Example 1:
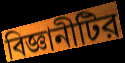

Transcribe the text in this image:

বিজ্ঞানীটির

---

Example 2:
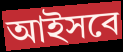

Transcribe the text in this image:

আইসবে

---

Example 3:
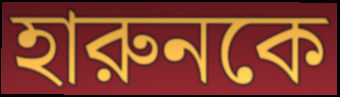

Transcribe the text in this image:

হারুনকে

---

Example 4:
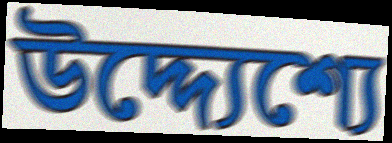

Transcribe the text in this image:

উদ্দ্যেশ্যে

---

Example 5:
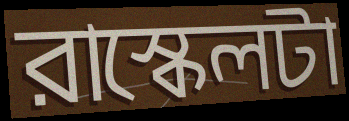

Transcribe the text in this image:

রাস্কেলটা